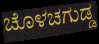
ಚೊಳಚಗುಡ್ಡ